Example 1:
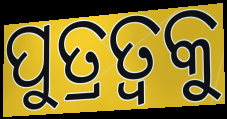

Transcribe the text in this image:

ପୁତ୍ରତ୍ଵକୁ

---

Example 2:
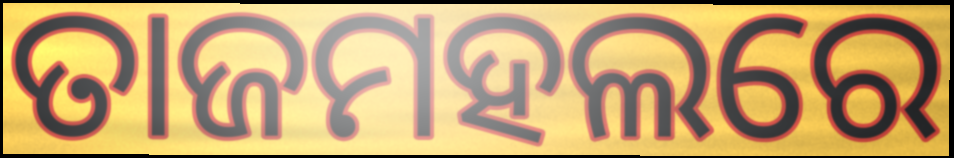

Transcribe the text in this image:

ତାଜମହଲରେ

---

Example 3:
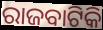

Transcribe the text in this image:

ରାଜବାଟିକି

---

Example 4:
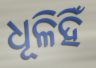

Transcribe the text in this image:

ଧୂଳିହିଁ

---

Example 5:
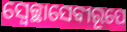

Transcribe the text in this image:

ସ୍ଵେଚ୍ଛାସେବୀରୂପେ